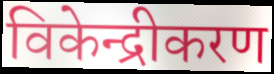
विकेन्द्रीकरण